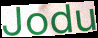
Jodu